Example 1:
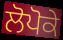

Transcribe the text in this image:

ਲੋਪੋਕੇ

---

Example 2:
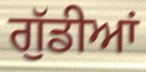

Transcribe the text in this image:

ਗੁੱਡੀਆਂ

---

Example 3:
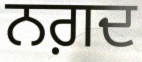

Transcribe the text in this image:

ਨਗ਼ਦ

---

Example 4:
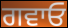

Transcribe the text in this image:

ਗਵਾਓ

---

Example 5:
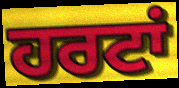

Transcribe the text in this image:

ਹਰਟਾਂ